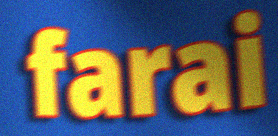
farai